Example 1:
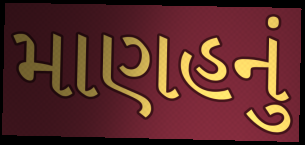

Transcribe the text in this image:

માણહનું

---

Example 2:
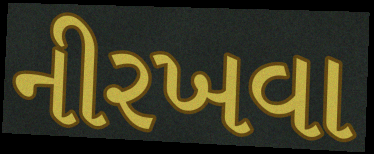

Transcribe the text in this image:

નીરખવા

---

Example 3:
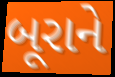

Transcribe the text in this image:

બૂરાને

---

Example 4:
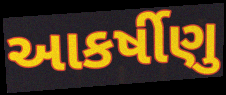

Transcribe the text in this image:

આકર્ષીણુ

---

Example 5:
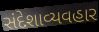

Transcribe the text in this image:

સંદેશાવ્યવહાર